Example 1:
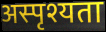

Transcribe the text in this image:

अस्पृश्यता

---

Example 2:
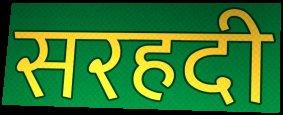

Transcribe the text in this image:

सरहदी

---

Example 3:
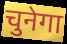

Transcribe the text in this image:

चुनेगा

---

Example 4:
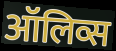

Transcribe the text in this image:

ऑलिव्स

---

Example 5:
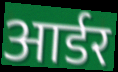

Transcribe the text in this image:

आर्डर